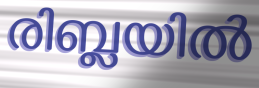
രിബ്ലയിൽ